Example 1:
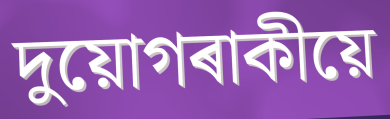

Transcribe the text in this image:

দুয়োগৰাকীয়ে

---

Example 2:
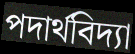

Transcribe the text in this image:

পদাৰ্থবিদ্যা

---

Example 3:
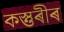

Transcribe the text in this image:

কস্তুৰীৰ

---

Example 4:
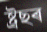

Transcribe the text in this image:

ষ্ট্ৰছৰ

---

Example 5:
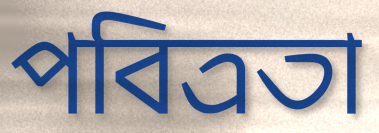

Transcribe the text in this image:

পবিত্ৰতা